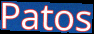
Patos